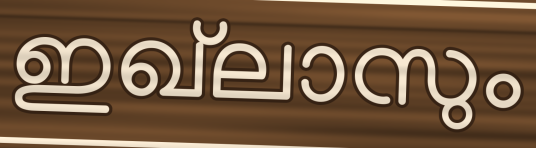
ഇഖ്‌ലാസും